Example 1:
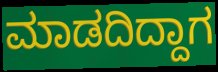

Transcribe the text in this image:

ಮಾಡದಿದ್ದಾಗ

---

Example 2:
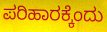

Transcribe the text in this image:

ಪರಿಹಾರಕ್ಕೆಂದು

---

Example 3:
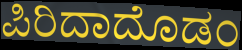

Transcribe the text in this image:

ಪಿರಿದಾದೊಡಂ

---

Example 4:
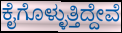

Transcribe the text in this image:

ಕೈಗೊಳ್ಳುತ್ತಿದ್ದೇವೆ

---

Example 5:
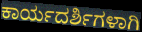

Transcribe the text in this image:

ಕಾರ್ಯದರ್ಶಿಗಳಾಗಿ